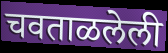
चवताळलेली